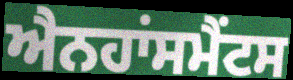
ਐਨਹਾਂਸਮੈਂਟਸ